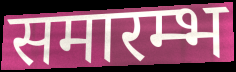
समारम्भ